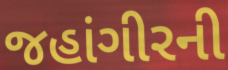
જહાંગીરની